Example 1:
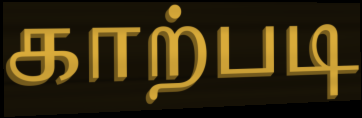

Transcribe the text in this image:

காற்படி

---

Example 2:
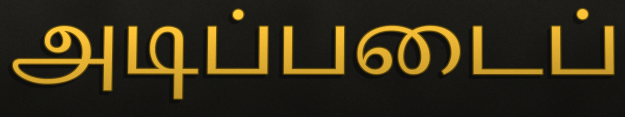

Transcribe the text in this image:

அடிப்படைப்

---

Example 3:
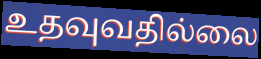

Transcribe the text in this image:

உதவுவதில்லை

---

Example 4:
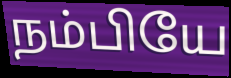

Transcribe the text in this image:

நம்பியே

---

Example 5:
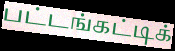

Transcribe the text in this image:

பட்டங்கட்டிக்